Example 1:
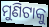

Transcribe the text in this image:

ମୁଣିଟାକୁ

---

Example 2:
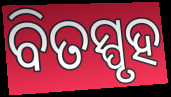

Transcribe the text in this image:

ବିତସ୍ପୃହ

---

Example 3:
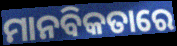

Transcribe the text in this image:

ମାନବିକତାରେ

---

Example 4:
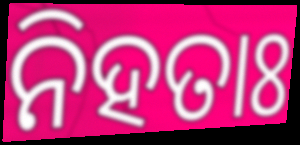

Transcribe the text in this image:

ନିହତାଃ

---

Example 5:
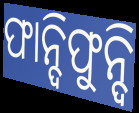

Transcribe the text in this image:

ଫାନ୍ଦିଫୁନ୍ଦି